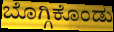
ಬೊಗ್ಗಿಕೊಂಡು